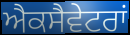
ਐਕਸੈਵੇਟਰਾਂ